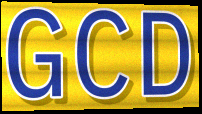
GCD